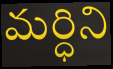
మర్ధిని